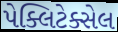
પેક્લિટેક્સેલ